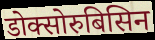
डोक्सोरुबिसिन